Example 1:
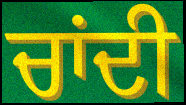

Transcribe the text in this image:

ਚਾਂਦੀ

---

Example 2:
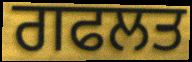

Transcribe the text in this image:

ਗਫਲਤ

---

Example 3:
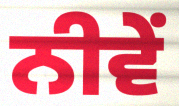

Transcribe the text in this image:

ਨੀਵੇਂ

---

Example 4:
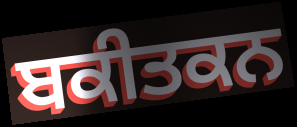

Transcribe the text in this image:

ਬਕੀਤਕਨ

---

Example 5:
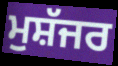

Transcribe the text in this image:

ਮੁਸ਼ੱਜਰ